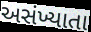
અસંખ્યાતા